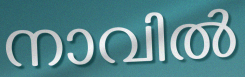
നാവിൽ